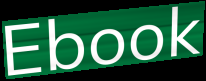
Ebook